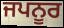
ਜਪਨੂਰ